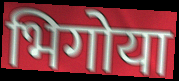
भिगोया